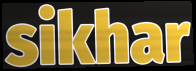
sikhar